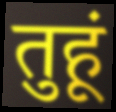
तुहूं